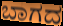
ಬಾಗದ